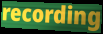
recording